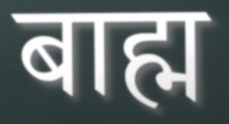
बाह्म